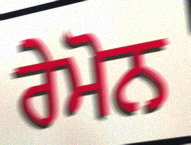
ਰੇਮੋਨ